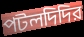
পটলদিদির